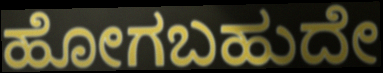
ಹೋಗಬಹುದೇ